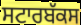
ਸਟਾਰਬੱਕਸ